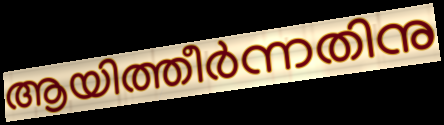
ആയിത്തീർന്നതിനു